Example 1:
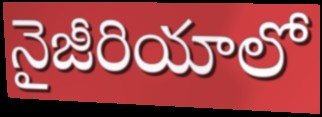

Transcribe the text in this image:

నైజీరియాలో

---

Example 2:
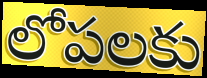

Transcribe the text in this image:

లోపలకు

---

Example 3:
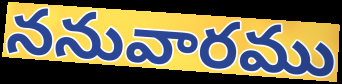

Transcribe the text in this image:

ననువారము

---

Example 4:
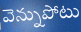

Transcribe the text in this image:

వెన్నుపోటు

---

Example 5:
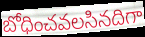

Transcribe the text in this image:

బోధించవలసినదిగా